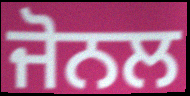
ਜੋਨਲ